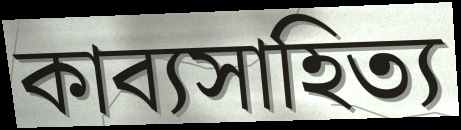
কাব্যসাহিত্য